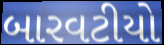
બારવટીયો